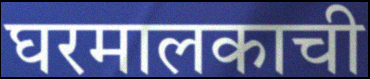
घरमालकाची